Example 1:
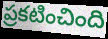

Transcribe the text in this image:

ప్రకటించింది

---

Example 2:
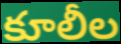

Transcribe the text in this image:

కూలీల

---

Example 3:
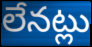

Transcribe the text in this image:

లేనట్లు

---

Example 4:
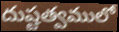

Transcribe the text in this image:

దుష్టత్వములో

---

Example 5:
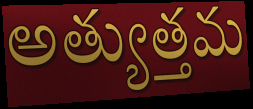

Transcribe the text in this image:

అత్యుత్తమ